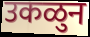
उकळुन